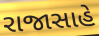
રાજાસાહે